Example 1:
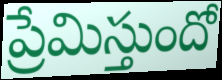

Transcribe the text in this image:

ప్రేమిస్తుందో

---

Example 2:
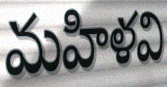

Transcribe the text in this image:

మహిళవి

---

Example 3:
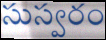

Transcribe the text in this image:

సుస్వరం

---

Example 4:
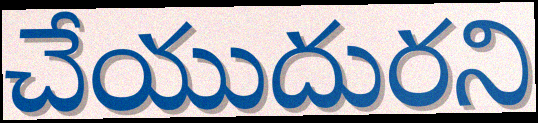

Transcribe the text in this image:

చేయుదురని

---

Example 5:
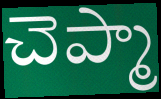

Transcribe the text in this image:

చెప్మా